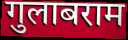
गुलाबराम